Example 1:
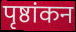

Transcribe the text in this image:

पृष्ठांकन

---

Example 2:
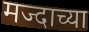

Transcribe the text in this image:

मज्दाच्या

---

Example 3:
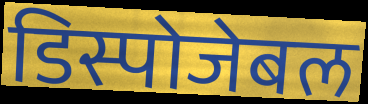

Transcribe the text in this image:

डिस्पोजेबल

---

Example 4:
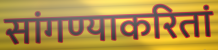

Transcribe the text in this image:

सांगण्याकरितां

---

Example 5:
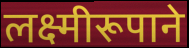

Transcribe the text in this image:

लक्ष्मीरूपाने